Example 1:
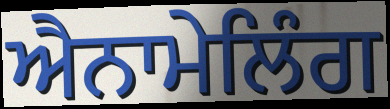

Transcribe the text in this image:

ਐਨਾਮੇਲਿੰਗ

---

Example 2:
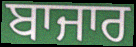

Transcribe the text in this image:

ਬਾਜਾਰ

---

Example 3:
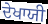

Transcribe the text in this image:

ਦੇਖਾਯੀ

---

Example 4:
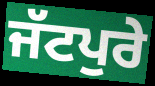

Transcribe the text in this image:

ਜੱਟਪੁਰੇ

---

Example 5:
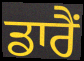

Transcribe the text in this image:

ਡਾਰੈਂ